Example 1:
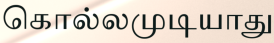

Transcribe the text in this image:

கொல்லமுடியாது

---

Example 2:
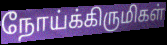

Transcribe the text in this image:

நோய்க்கிருமிகள்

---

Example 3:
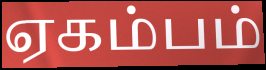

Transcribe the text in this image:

ஏகம்பம்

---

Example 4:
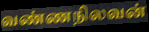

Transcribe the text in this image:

வண்ணநிலவன்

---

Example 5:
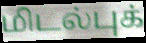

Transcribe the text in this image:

மிடல்புக்